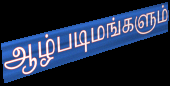
ஆழ்படிமங்களும்